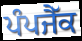
ਪੰਪਜੈੱਕ